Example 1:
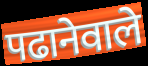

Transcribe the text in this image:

पढानेवाले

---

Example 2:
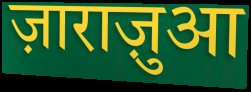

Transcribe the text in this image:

ज़ाराज़ुआ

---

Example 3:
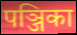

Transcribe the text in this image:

पञ्जिका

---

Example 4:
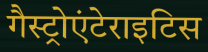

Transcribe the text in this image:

गैस्ट्रोएंटेराइटिस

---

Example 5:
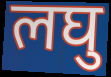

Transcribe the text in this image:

लघु